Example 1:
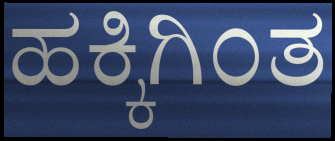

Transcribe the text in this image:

ಹಕ್ಕಿಗಿಂತ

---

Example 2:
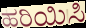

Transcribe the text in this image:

ಹರಿಯಿಸಿ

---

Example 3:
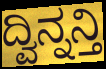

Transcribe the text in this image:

ದ್ವಿನ್ನನ್ತಿ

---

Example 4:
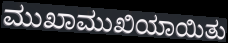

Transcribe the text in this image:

ಮುಖಾಮುಖಿಯಾಯಿತು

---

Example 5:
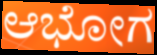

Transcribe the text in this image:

ಆಭೋಗ